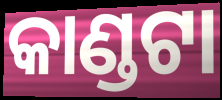
କାଣ୍ଡଟା